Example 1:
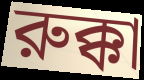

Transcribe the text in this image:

রুক্কা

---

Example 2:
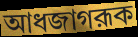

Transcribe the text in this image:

আধজাগরূক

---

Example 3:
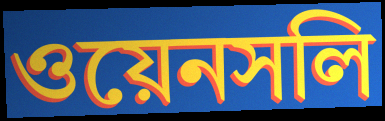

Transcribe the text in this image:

ওয়েনসলি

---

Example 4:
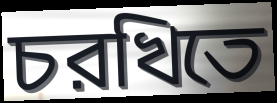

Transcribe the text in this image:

চরখিতে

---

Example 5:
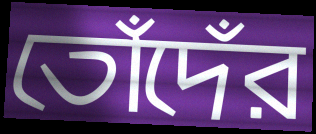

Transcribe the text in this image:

তোঁদেঁর